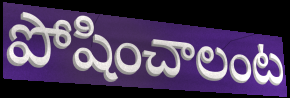
పోషించాలంట